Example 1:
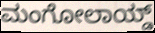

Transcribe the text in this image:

ಮಂಗೋಲಾಯ್ಡ್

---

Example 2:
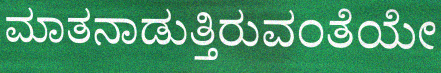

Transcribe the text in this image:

ಮಾತನಾಡುತ್ತಿರುವಂತೆಯೇ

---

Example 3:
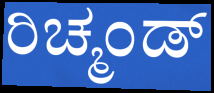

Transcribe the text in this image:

ರಿಚ್ಮಂಡ್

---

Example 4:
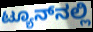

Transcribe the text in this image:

ಟ್ಯೂನ್‌ನಲ್ಲಿ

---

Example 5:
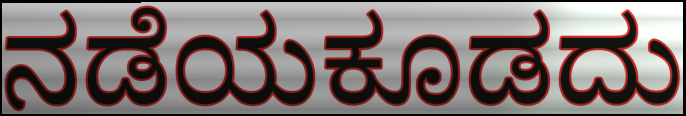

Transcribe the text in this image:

ನಡೆಯಕೂಡದು